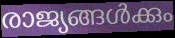
രാജ്യങ്ങൾക്കും